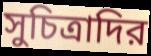
সুচিত্রাদির